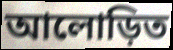
আলোড়িত